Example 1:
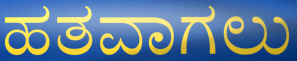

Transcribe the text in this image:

ಹತವಾಗಲು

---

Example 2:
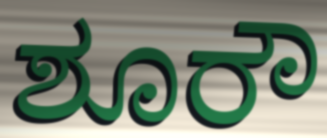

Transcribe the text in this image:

ಶೂರೌ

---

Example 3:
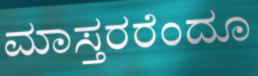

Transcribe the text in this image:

ಮಾಸ್ತರರೆಂದೂ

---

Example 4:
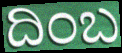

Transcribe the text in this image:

ದಿಂಬ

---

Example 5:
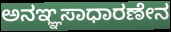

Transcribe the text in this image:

ಅನಞ್ಞಸಾಧಾರಣೇನ